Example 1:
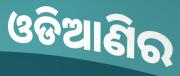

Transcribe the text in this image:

ଓଡିଆଣିର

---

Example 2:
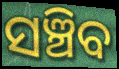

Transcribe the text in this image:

ସଞ୍ଚିବ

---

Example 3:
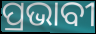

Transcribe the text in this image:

ପ୍ରଭାବୀ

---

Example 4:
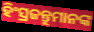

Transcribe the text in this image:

ହିଂସ୍ରଜନ୍ତୁମାନଙ୍କ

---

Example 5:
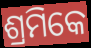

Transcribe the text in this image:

ଶ୍ରମିକେ